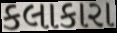
કલાકારા